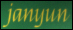
janyun